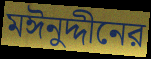
মঈনুদ্দীনের